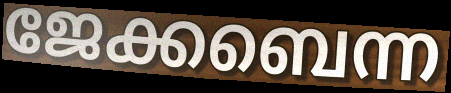
ജേക്കബെന്ന